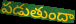
పడుతుందా